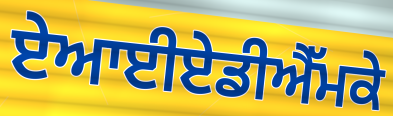
ਏਆਈਏਡੀਐੱਮਕੇ